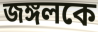
জঙ্গলকে